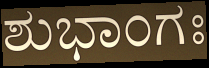
ಶುಭಾಂಗಃ